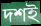
দশই